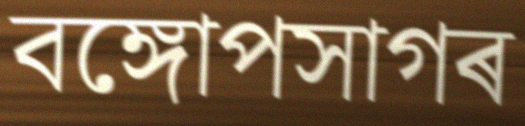
বঙ্গোপসাগৰ